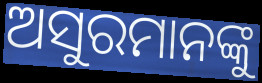
ଅସୁରମାନଙ୍କୁ